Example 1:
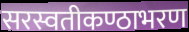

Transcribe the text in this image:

सरस्वतीकण्ठाभरण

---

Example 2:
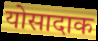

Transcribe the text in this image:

योसादाक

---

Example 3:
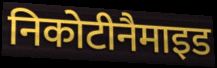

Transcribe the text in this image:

निकोटीनैमाइड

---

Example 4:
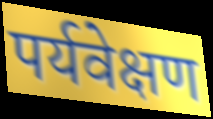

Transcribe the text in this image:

पर्यवेक्षण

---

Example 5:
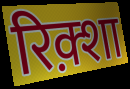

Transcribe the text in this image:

रिक़्शा